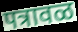
पत्रावळ